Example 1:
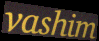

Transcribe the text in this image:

vashim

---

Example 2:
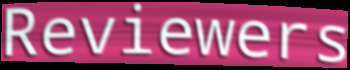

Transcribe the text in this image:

Reviewers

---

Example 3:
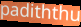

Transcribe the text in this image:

padiththu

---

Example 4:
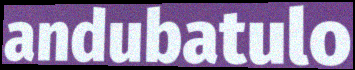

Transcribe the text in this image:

andubatulo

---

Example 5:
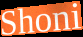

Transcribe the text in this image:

Shoni